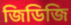
জিডিজি